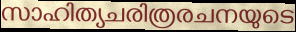
സാഹിത്യചരിത്രരചനയുടെ